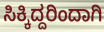
ಸಿಕ್ಕಿದ್ದರಿಂದಾಗಿ